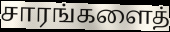
சாரங்களைத்